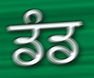
ਡੰਡ